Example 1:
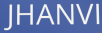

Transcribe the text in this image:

JHANVI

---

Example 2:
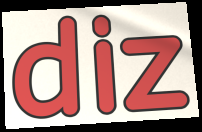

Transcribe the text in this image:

diz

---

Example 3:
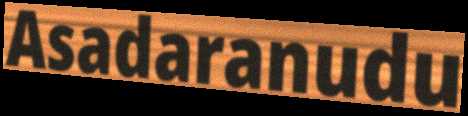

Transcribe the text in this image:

Asadaranudu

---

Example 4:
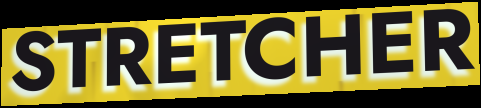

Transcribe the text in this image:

STRETCHER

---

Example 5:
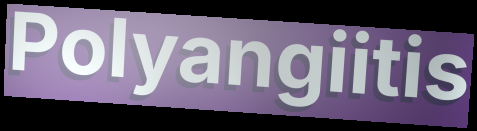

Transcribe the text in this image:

Polyangiitis